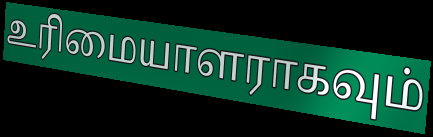
உரிமையாளராகவும்